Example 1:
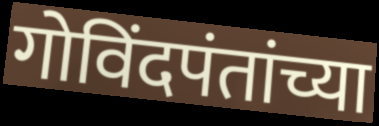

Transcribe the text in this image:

गोविंदपंतांच्या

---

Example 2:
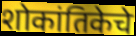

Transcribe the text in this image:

शोकांतिकेचे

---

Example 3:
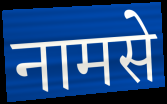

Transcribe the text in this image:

नामसे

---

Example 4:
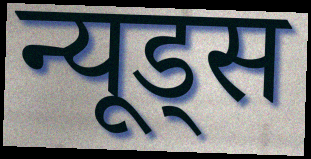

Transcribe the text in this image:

न्यूड्स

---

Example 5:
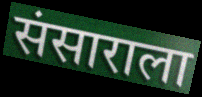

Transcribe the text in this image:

संसाराला